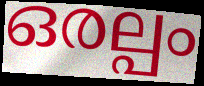
ഒരല്പം